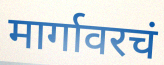
मार्गावरचं